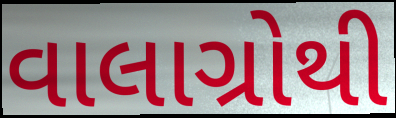
વાલાગ્રોથી